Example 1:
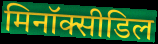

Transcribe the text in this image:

मिनॉक्सीडिल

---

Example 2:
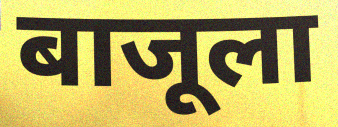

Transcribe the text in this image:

बाजूला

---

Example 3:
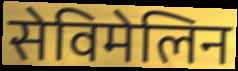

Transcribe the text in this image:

सेविमेलिन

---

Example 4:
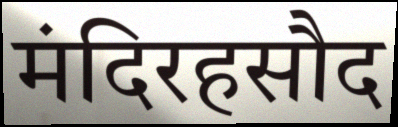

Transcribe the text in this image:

मंदिरहसौद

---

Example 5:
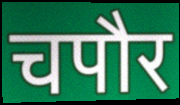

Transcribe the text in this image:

चपौर